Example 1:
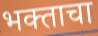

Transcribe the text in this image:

भक्ताचा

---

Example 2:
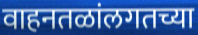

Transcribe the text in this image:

वाहनतळांलगतच्या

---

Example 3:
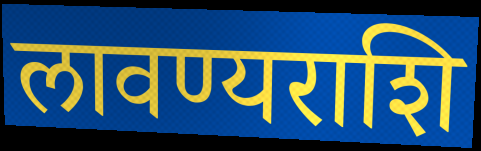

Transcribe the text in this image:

लावण्यराशि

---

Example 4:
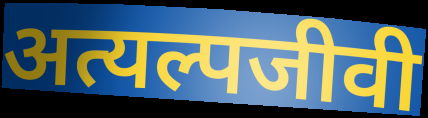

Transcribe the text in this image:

अत्यल्पजीवी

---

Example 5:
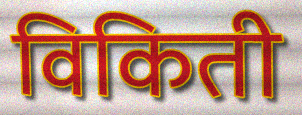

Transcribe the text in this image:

विकिती